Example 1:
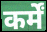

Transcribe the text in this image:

कर्में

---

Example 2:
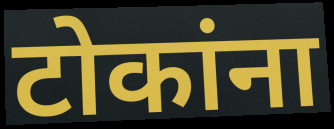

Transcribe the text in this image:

टोकांना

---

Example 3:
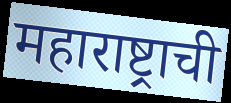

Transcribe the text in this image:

महाराष्ट्राची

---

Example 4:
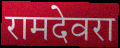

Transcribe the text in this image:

रामदेवरा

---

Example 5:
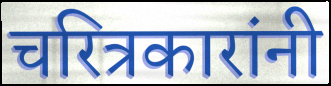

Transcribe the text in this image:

चरित्रकारांनी